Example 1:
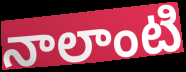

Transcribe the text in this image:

నాలాంటి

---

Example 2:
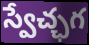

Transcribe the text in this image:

స్వేచ్ఛగ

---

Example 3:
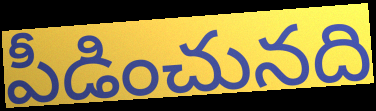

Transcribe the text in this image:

పీడించునది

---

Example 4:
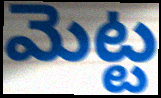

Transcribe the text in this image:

మెట్ట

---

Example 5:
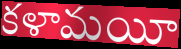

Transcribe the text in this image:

కళామయీ